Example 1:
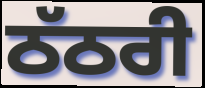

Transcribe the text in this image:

ਠੱਠਰੀ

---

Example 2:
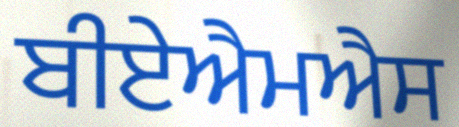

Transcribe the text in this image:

ਬੀਏਐਮਐਸ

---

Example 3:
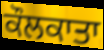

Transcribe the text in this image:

ਕੌਲਕਾਤਾ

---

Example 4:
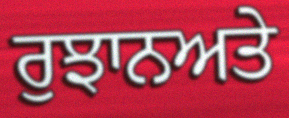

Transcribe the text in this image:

ਰੁਝਾਨਅਤੇ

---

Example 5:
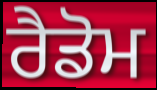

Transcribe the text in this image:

ਰੈਡੋਮ